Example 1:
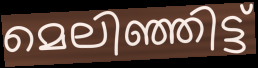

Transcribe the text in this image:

മെലിഞ്ഞിട്ട്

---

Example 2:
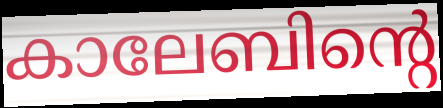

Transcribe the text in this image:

കാലേബിന്റെ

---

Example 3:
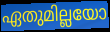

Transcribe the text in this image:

ഏതുമില്ലയോ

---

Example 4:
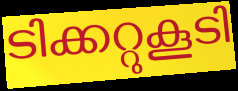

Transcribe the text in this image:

ടിക്കറ്റുകൂടി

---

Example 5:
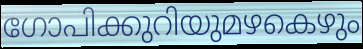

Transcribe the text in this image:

ഗോപിക്കുറിയുമഴകെഴും